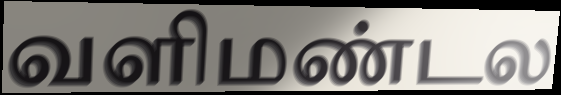
வளிமண்டல